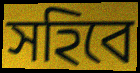
সহিবে